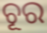
ଚୂର